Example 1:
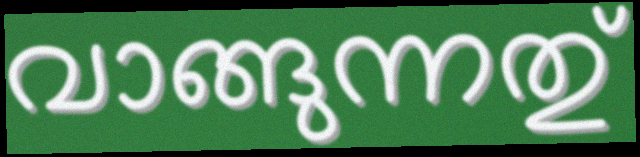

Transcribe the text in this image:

വാങ്ങുന്നതു്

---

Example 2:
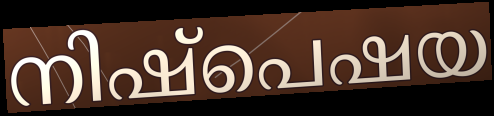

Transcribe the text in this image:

നിഷ്പെഷയ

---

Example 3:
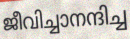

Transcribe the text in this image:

ജീവിച്ചാനന്ദിച്ച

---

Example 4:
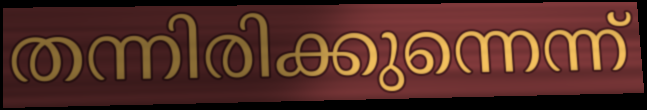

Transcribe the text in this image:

തന്നിരിക്കുന്നെന്ന്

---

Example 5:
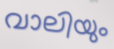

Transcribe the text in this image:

വാലിയും